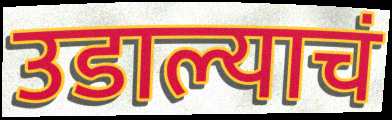
उडाल्याचं